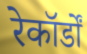
रेकॉर्डों